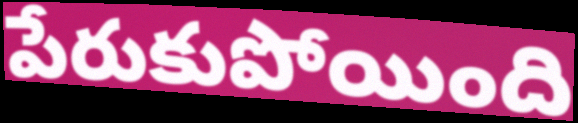
పేరుకుపోయింది